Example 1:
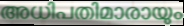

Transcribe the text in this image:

അധിപതിമാരായും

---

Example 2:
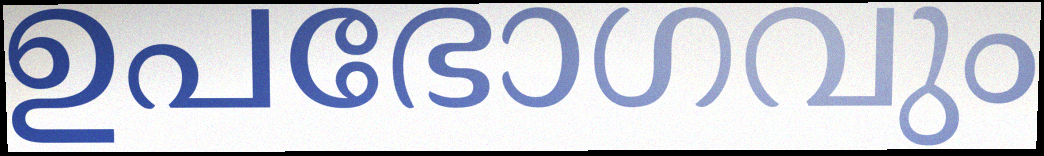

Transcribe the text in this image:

ഉപഭോഗവും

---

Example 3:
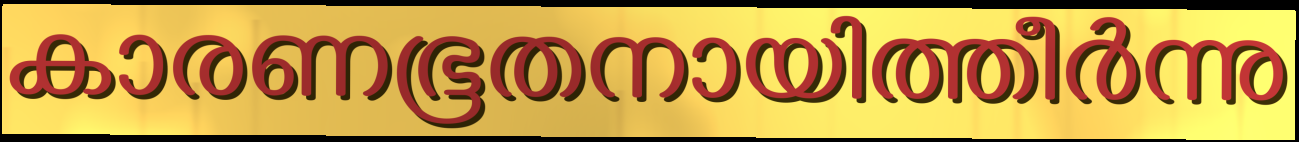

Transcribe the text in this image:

കാരണഭൂതനായിത്തീർന്നു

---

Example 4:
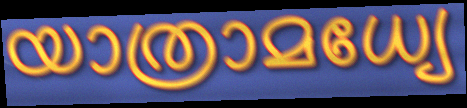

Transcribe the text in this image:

യാത്രാമധ്യേ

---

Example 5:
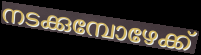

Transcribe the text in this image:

നടക്കുമ്പോഴേക്ക്